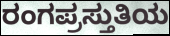
ರಂಗಪ್ರಸ್ತುತಿಯ